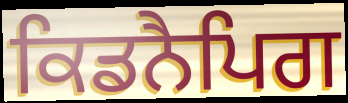
ਕਿਡਨੈਪਿਗ